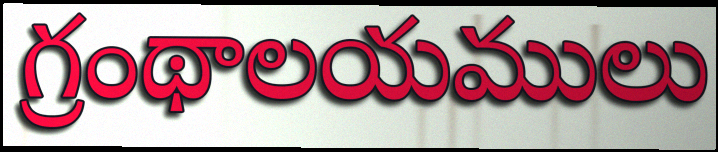
గ్రంథాలయములు